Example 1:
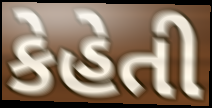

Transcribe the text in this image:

કેહેતી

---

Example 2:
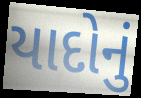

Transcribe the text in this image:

યાદોનું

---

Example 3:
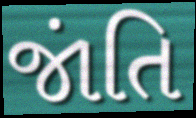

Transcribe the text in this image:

જાંતિ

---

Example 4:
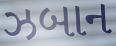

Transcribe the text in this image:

ઝબાન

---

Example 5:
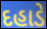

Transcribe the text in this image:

દહાડે